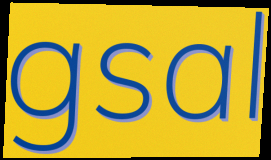
gsal